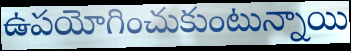
ఉపయోగించుకుంటున్నాయి